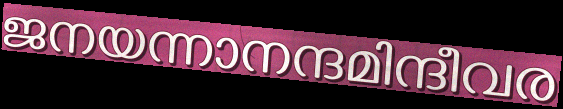
ജനയന്നാനന്ദമിന്ദീവര